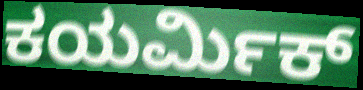
ಕಯರ್ಮಿಕ್